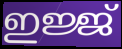
ഇജ്ജ്